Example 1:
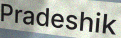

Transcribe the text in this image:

Pradeshik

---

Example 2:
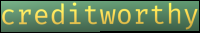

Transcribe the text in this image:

creditworthy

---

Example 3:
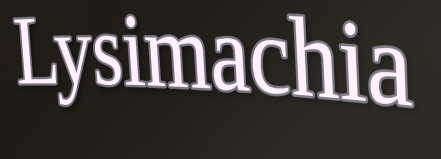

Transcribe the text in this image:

Lysimachia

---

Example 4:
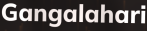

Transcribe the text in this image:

Gangalahari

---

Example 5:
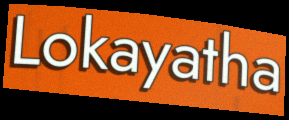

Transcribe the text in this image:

Lokayatha